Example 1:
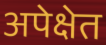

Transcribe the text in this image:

अपेक्षेत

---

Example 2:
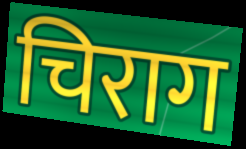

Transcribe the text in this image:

चिराग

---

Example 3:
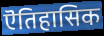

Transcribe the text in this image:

ऎतिहासिक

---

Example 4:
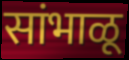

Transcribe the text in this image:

सांभाळू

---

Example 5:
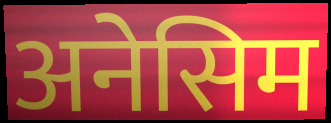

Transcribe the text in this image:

अनेसिम